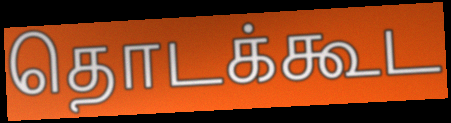
தொடக்கூட